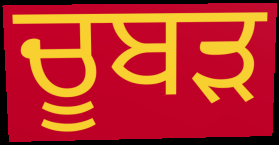
ਚੂਬੜ